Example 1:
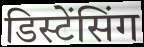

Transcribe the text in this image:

डिस्टेंसिंग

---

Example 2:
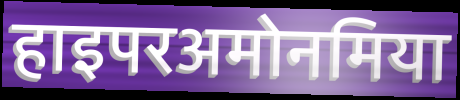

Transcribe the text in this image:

हाइपरअमोनमिया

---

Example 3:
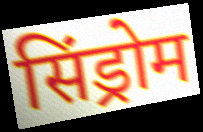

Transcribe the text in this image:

सिंड्रोम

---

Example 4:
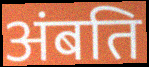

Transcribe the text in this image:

अंबति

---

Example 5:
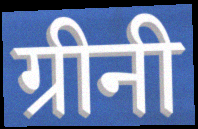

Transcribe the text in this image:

ग्रीनी